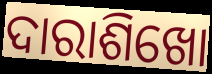
ଦାରାଶିଖୋ